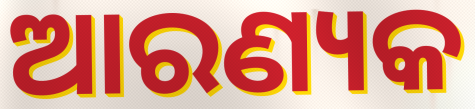
ଆରଣ୍ୟକ